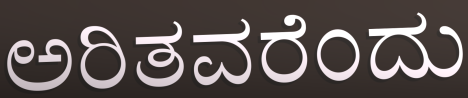
ಅರಿತವರೆಂದು